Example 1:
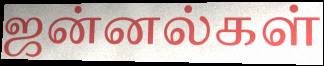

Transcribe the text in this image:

ஜன்னல்கள்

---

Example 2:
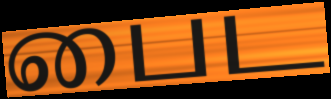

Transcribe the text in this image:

பைட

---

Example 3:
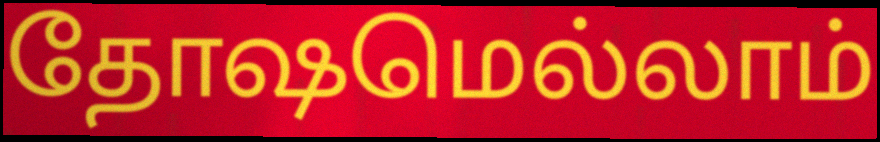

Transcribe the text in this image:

தோஷமெல்லாம்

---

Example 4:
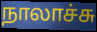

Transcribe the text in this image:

நாலாச்சு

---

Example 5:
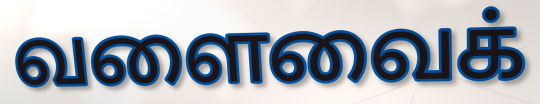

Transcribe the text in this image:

வளைவைக்